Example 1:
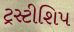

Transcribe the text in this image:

ટ્રસ્ટીશિપ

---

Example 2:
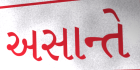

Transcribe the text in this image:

અસાન્તે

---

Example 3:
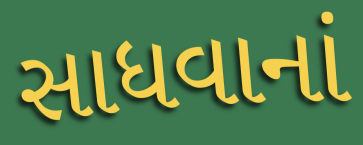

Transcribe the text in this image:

સાધવાનાં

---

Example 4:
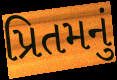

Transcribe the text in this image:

પ્રિતમનું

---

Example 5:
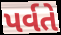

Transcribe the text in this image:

પર્વતે